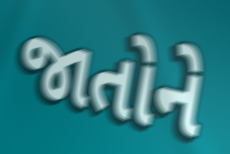
જાતોને